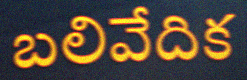
బలివేదిక